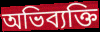
অভিব্যক্তি